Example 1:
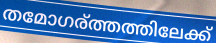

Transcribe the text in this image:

തമോഗര്ത്തത്തിലേക്ക്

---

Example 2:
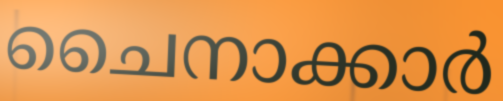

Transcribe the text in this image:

ചൈനാക്കാർ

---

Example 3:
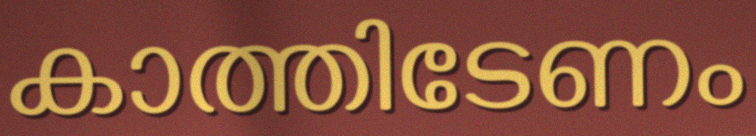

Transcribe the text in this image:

കാത്തിടേണം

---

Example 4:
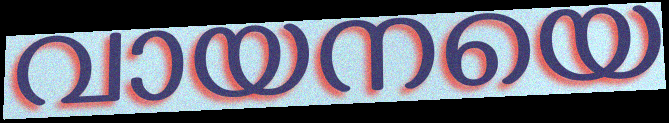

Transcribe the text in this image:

വായനയെ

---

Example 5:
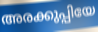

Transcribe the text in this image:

അരക്കുപ്പിയേ